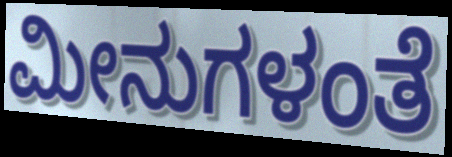
ಮೀನುಗಳಂತೆ